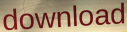
download